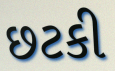
છટકી